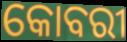
କୋବରୀ